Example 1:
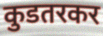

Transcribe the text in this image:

कुडतरकर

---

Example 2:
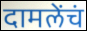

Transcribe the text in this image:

दामलेंचं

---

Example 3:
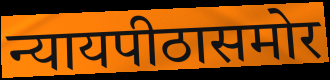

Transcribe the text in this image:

न्यायपीठासमोर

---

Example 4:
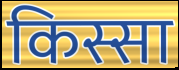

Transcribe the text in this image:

किस्सा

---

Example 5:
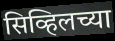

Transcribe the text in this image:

सिव्हिलच्या